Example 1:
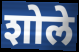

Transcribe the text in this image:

शोले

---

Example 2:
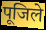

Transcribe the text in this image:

पूजिले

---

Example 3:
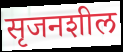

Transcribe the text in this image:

सृजनशील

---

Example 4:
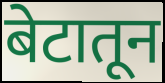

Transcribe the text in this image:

बेटातून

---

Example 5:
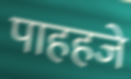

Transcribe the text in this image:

पाहहजे